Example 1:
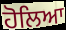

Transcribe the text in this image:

ਹੋਲਿਆ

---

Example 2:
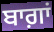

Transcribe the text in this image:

ਬਾਗ਼ਾਂ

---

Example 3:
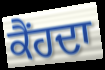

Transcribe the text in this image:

ਕੈਂਹਦਾ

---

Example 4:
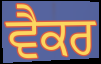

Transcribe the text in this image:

ਵੈਕਰ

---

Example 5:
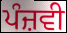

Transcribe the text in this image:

ਪੰਜ਼ਵੀ